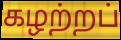
கழற்றப்